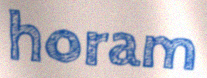
horam